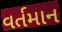
વર્તમાન